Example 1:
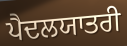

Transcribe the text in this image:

ਪੈਦਲਯਾਤਰੀ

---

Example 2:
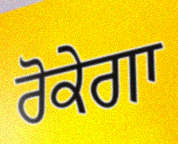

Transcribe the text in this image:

ਰੋਕੇਗਾ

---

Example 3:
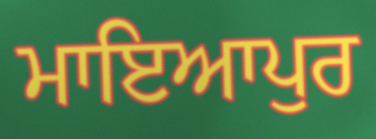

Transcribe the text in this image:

ਮਾਇਆਪੁਰ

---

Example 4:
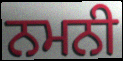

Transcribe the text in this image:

ਨਮਨੀ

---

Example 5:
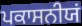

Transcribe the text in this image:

ਪਕਾਸਨੀਯਂ